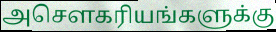
அசௌகரியங்களுக்கு